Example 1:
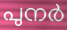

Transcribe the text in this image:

പുനർ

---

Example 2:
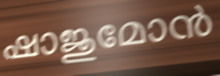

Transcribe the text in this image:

ഷാജുമോൻ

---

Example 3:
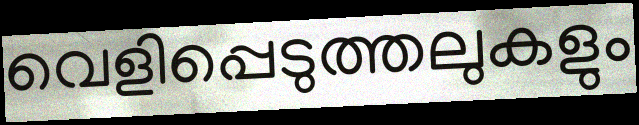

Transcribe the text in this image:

വെളിപ്പെടുത്തലുകളും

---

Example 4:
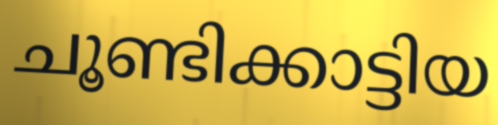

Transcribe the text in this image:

ചൂണ്ടിക്കാട്ടിയ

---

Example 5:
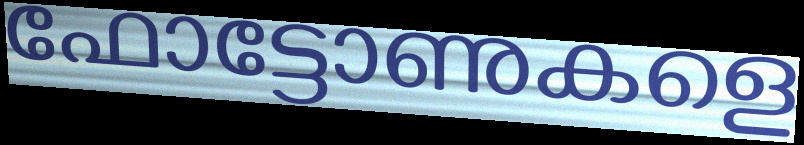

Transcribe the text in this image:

ഫോട്ടോണുകളെ